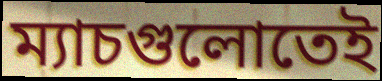
ম্যাচগুলোতেই